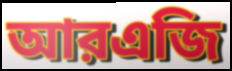
আরএজি